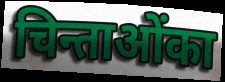
चिन्ताओंका